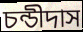
চন্ডীদাস